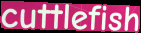
cuttlefish